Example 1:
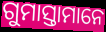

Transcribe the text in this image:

ଗୁମାସ୍ତାମାନେ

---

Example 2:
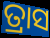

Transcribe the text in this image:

ତ୍ରାସ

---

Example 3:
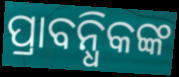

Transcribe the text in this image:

ପ୍ରାବନ୍ଧିକଙ୍କ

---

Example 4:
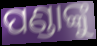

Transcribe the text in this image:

ପଣ୍ଡାଙ୍କୁ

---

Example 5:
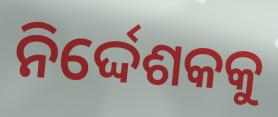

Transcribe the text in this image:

ନିର୍ଦ୍ଦେଶକକୁ